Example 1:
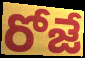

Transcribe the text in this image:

రోజే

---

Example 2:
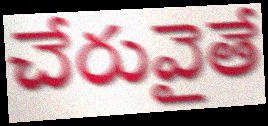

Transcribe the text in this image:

చేరువైతే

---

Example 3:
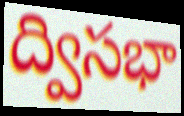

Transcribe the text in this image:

ద్విసభా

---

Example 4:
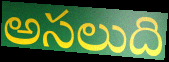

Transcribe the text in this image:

అసలుది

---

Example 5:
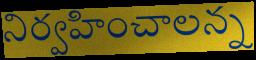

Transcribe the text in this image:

నిర్వహించాలన్న